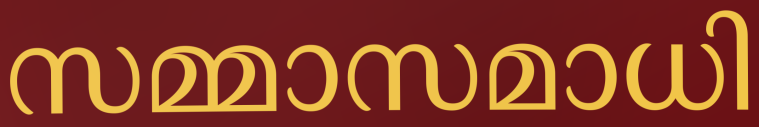
സമ്മാസമാധി